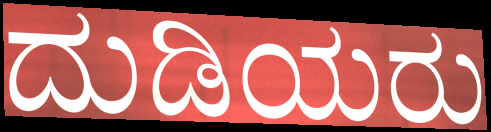
ದುಡಿಯರು